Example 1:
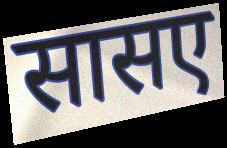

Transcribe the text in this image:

सासए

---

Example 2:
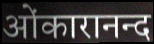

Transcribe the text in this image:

ओंकारानन्द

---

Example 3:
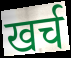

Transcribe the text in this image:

खर्च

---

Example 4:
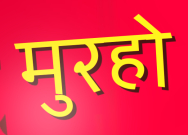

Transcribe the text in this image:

मुरहो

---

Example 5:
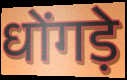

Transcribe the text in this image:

धोंगड़े